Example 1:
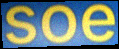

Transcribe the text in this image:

soe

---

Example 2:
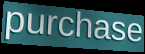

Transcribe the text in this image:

purchase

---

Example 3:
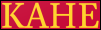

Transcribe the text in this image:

KAHE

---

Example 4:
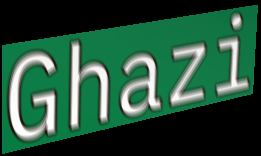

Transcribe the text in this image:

Ghazi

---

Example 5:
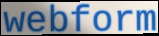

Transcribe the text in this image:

webform